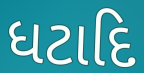
ધટાદિ